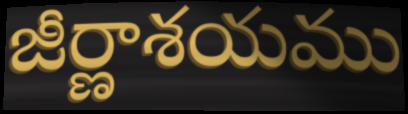
జీర్ణాశయము